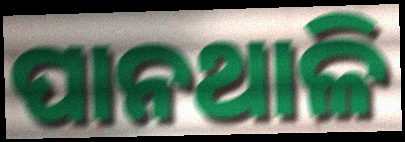
ପାନଥାଳି